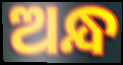
ଅନ୍ଧ